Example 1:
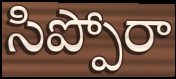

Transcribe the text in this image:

సిప్పోరా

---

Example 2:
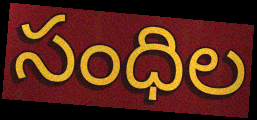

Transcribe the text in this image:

సంధిల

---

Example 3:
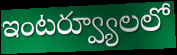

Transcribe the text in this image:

ఇంటర్వ్యూలలో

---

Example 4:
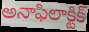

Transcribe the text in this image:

అనాఫిలాక్టిక్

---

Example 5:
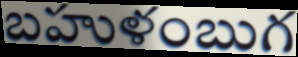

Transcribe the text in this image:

బహుళంబుగ